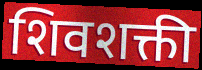
शिवशक्ती